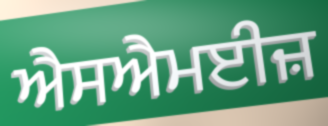
ਐਸਐਮਈਜ਼